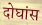
दोघांस